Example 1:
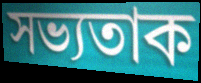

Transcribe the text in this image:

সভ্যতাক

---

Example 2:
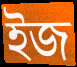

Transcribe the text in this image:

ইজ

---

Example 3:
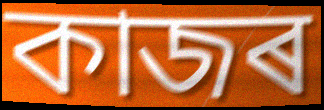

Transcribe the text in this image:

কাজৰ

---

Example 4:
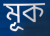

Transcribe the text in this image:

মূক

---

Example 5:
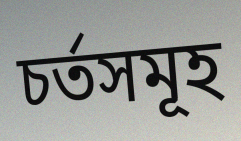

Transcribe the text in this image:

চৰ্তসমূহ